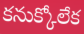
కనుక్కోలేక